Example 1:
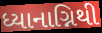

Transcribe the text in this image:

ધ્યાનાગ્નિથી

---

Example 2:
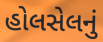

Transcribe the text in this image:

હોલસેલનું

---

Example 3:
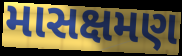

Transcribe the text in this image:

માસક્ષમણ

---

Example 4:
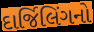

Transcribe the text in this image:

દાર્જિલિંગનો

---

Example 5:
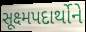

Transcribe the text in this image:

સૂક્ષ્મપદાર્થોને